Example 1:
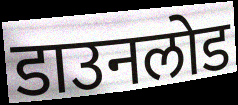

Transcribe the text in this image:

डाउनलोड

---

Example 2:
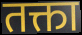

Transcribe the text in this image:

तक्ता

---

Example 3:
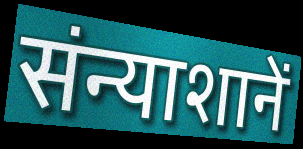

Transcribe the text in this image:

संन्याशानें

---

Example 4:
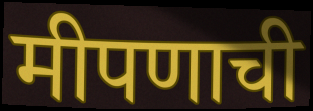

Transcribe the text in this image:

मीपणाची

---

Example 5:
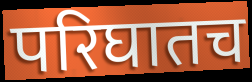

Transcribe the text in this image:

परिघातच